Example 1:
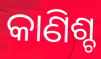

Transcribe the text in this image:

କାଣିଶ୍ଚ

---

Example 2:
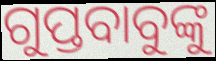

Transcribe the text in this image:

ଗୁପ୍ତବାବୁଙ୍କୁ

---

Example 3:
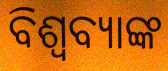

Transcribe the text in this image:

ବିଶ୍ୱବ୍ୟାଙ୍କ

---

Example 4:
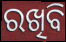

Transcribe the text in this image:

ରଖିବି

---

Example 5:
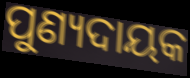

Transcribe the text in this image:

ପୁଣ୍ୟଦାୟକ